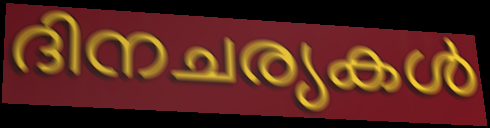
ദിനചര്യകൾ